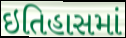
ઇતિહાસમાં